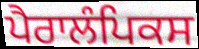
ਪੈਰਾਲੰਪਿਕਸ